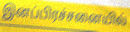
இனப்பிரச்சனையில்